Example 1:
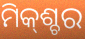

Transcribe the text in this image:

ମିକ୍‌ଶ୍ଚର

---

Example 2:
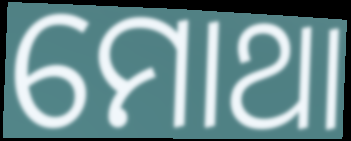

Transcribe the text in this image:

ମୋଥା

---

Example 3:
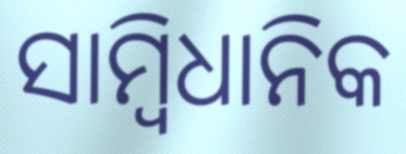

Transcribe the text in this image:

ସାମ୍ବିଧାନିକ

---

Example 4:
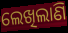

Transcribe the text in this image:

ଲେଖିଲାଣି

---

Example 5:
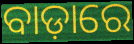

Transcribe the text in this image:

ବାଡ଼ାରେ